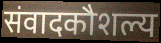
संवादकौशल्य